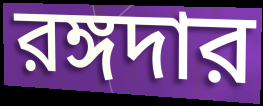
রঙ্গদার